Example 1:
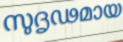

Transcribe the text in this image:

സുദൃഢമായ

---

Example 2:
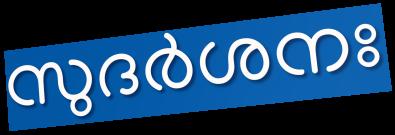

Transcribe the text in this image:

സുദർശനഃ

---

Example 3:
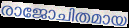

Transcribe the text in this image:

രാജോചിതമായ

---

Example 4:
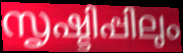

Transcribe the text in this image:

സൃഷ്ടിപ്പിലും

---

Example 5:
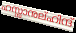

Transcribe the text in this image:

ഹസ്സാനുല്ഹിന്ദ്